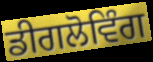
ਡੀਗਲੋਵਿੰਗ